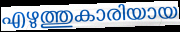
എഴുത്തുകാരിയായ